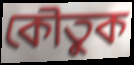
কৌতুক